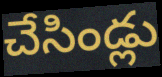
చేసిండ్లు